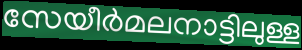
സേയീർമലനാട്ടിലുള്ള